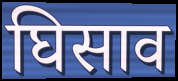
घिसाव